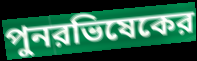
পুনরভিষেকের